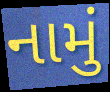
નામું